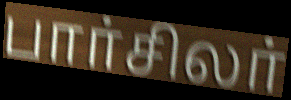
பார்சிலர்